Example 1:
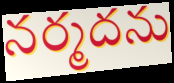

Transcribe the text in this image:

నర్మదను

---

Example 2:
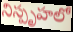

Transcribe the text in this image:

నిస్పృహలో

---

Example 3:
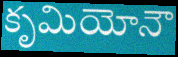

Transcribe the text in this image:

కృమియోనౌ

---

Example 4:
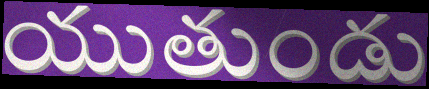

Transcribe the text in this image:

యుతుండు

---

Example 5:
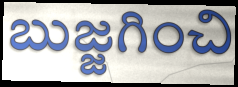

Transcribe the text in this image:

బుజ్జగించి